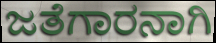
ಜತೆಗಾರನಾಗಿ